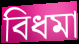
বিধমা